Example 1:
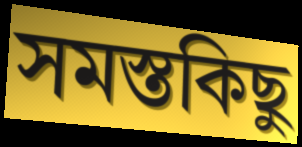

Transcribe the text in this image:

সমস্তকিছু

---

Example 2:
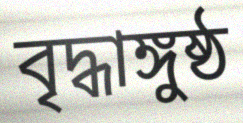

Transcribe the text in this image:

বৃদ্ধাঙ্গুষ্ঠ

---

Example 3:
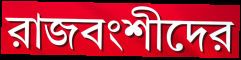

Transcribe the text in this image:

রাজবংশীদের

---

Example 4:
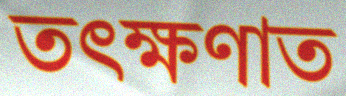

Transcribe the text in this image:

তৎক্ষণাত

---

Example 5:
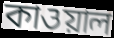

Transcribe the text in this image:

কাওয়াল